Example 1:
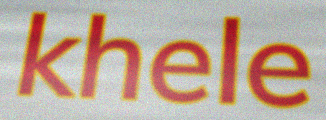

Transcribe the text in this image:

khele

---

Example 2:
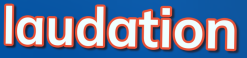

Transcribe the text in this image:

laudation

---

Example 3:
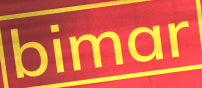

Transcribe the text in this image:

bimar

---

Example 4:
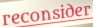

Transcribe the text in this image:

reconsider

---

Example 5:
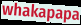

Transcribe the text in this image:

whakapapa